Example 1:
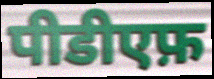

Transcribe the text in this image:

पीडीएफ़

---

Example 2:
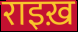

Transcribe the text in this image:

राइख़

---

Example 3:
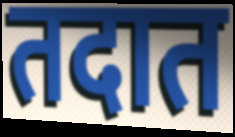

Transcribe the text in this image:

तदात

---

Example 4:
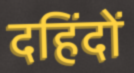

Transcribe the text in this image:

दहिंदों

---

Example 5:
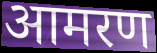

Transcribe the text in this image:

आमरण